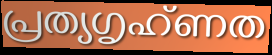
പ്രത്യഗൃഹ്ണത